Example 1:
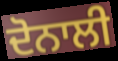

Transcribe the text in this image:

ਦੋਨਾਲੀ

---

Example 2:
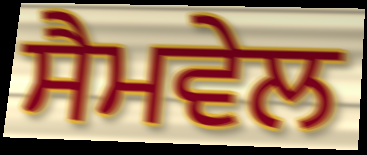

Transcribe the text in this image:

ਸੈਮਵੇਲ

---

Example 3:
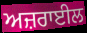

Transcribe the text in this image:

ਅਜ਼ਰਾਈਲ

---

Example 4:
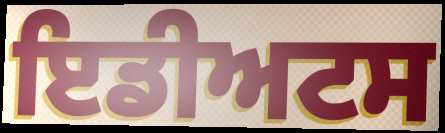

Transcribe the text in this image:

ਇਡੀਅਟਸ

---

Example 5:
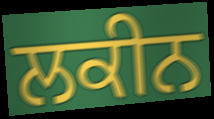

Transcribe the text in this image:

ਲਕੀਨ